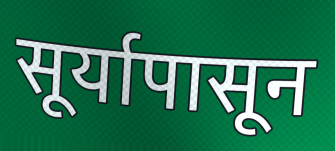
सूर्यापासून